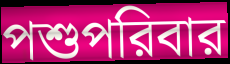
পশুপরিবার